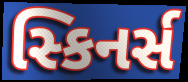
સ્કિનર્સ